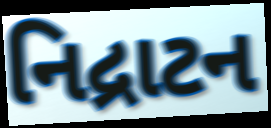
નિદ્રાટન